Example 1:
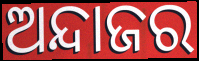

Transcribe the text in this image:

ଅନ୍ଦାଜର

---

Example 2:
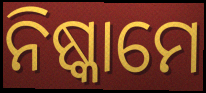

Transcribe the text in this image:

ନିଷ୍କାମେ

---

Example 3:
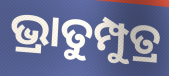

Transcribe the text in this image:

ଭ୍ରାତୁମ୍ପୁତ୍ର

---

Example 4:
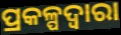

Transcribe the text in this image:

ପ୍ରକଳ୍ପଦ୍ୱାରା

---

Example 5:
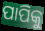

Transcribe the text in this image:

ପାପିକୁ